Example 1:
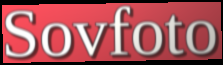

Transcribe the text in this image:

Sovfoto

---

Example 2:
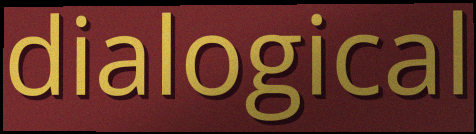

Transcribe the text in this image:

dialogical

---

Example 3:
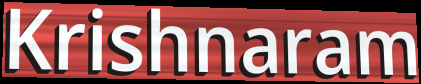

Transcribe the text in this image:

Krishnaram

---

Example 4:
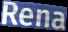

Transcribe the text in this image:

Rena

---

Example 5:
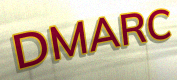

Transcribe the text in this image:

DMARC